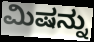
ಮಿಷನ್ನು